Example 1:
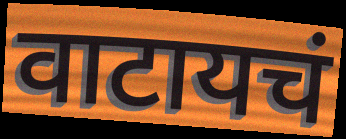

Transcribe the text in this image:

वाटायचं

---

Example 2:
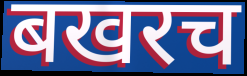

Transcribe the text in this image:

बखरच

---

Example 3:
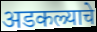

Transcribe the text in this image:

अडकल्याचे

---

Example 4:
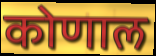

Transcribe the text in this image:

कोणाल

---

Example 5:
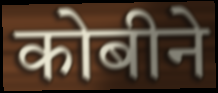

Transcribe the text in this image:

कोबीने